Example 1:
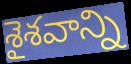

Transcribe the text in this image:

శైశవాన్ని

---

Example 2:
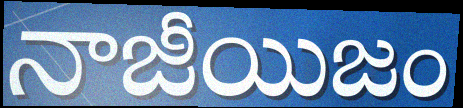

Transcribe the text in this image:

నాజీయిజం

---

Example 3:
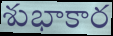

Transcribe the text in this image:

శుభాకార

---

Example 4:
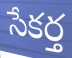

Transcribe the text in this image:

సేకర్త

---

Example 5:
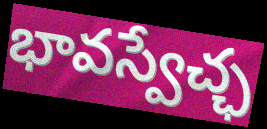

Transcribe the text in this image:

భావస్వేచ్ఛ